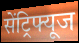
सेंट्रिफ्यूज